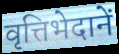
वृत्तिभेदानें